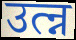
उत्न्न